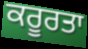
ਕਰੂਰਤਾ